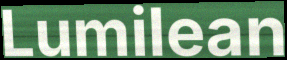
Lumilean